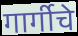
गार्गीचे